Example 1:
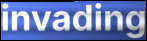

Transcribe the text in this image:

invading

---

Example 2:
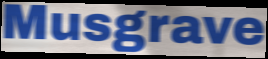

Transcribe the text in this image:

Musgrave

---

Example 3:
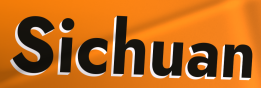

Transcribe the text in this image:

Sichuan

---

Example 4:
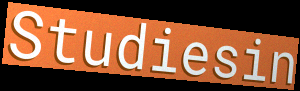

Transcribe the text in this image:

Studiesin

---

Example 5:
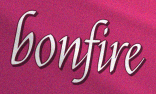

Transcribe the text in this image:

bonfire